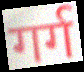
गर्ग